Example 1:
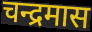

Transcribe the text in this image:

चन्द्रमास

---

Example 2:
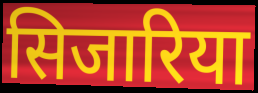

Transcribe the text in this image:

सिजारिया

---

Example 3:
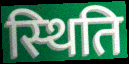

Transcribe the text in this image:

स्‍थिति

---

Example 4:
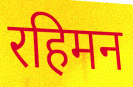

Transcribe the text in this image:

रहिमन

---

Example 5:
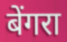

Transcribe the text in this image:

बेंगरा